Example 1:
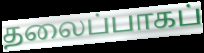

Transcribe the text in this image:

தலைப்பாகப்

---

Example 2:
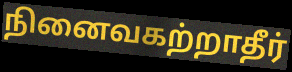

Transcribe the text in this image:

நினைவகற்றாதீர்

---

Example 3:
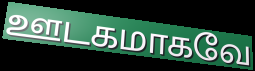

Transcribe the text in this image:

ஊடகமாகவே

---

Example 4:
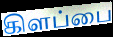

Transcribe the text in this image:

கிளப்பை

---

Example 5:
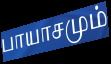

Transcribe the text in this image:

பாயாசமும்